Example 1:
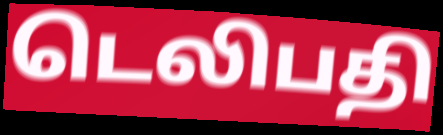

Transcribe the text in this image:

டெலிபதி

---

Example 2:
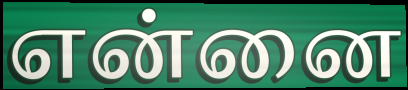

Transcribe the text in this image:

என்னை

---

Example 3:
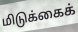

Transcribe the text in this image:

மிடுக்கைக்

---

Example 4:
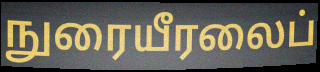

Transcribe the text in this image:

நுரையீரலைப்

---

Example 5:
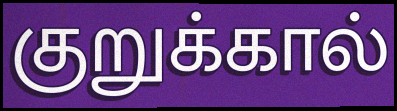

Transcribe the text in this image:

குறுக்கால்